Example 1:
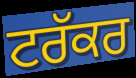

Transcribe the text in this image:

ਟਰੱਕਰ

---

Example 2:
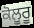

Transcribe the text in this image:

ਕੋਲੂਰੂ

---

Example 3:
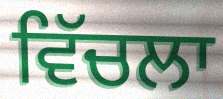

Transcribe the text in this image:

ਵਿੱਚਲਾ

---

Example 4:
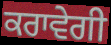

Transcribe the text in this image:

ਕਰਾਵੇਗੀ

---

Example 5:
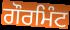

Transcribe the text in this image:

ਗੌਰਮਿੰਟ